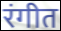
रंगीत